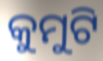
କୁମୁଟି